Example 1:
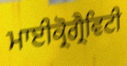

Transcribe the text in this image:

ਮਾਈਕ੍ਰੋਗ੍ਰੈਵਿਟੀ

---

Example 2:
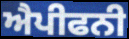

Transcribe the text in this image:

ਐਪੀਫਨੀ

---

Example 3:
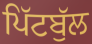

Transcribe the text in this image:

ਪਿੱਟਬੁੱਲ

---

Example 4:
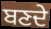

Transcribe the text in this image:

ਬਣਦੇ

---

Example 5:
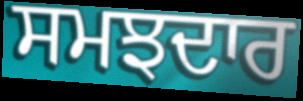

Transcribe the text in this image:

ਸਮਝਦਾਰ